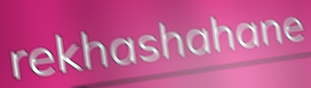
rekhashahane